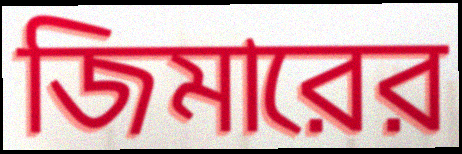
জিমারের